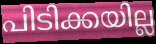
പിടിക്കയില്ല